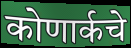
कोणार्कचे